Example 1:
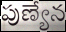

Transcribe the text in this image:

పుణ్యేన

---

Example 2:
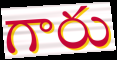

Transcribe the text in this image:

గారు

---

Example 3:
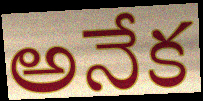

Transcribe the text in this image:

అనేక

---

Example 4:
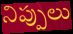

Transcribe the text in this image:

నిప్పులు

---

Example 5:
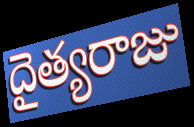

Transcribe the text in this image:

దైత్యరాజు